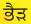
ਭੈੜ